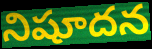
నిషూదన